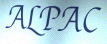
ALPAC